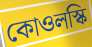
কোওলস্কি